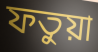
ফতুয়া